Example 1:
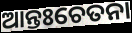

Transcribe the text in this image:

ଆନ୍ତଃଚେତନା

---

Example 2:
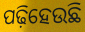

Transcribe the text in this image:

ପଢ଼ିହେଉଛି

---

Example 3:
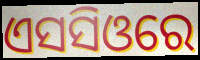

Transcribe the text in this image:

ଏସସିଓରେ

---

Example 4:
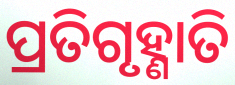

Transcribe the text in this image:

ପ୍ରତିଗୃହ୍ଣାତି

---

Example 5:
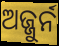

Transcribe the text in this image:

ଅଜ୍ଜୁର୍ନ